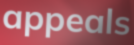
appeals